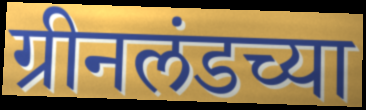
ग्रीनलंडच्या